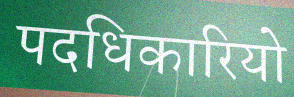
पदधिकारियो